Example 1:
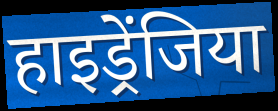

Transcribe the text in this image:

हाइड्रेंजिया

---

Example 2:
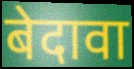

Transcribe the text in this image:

बेदावा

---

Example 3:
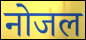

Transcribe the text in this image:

नोजल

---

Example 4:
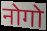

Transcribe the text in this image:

नोगो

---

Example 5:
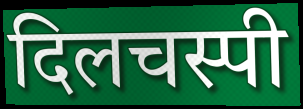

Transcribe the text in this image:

दिलचस्‍पी